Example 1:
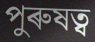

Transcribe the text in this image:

পুৰুষত্ব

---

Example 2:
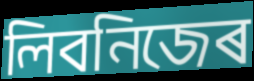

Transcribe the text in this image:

লিবনিজেৰ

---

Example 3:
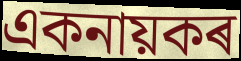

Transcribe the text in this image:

একনায়কৰ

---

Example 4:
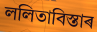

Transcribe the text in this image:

ললিতাবিস্তাৰ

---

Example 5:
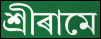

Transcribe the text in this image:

শ্ৰীৰামে